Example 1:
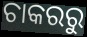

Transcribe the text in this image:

ଚାକରରୁ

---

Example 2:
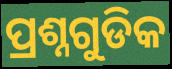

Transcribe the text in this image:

ପ୍ରଶ୍ନଗୁଡିକ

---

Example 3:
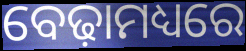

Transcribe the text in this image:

ବେଢ଼ାମଧ୍ୟରେ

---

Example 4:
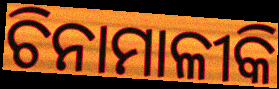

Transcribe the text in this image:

ଚିନାମାଳୀକି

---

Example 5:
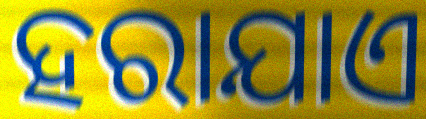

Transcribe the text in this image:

ହରାଯାଏ